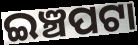
ଇଞ୍ଚପଟା